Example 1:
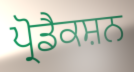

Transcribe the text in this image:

ਪ੍ਰੋਡੈਕਸ਼ਨ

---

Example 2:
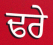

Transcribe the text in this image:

ਢਰੇ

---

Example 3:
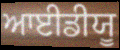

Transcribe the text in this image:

ਆਈਡੀਯੂ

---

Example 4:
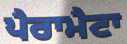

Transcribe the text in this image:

ਪੈਰਾਮੈਟਾ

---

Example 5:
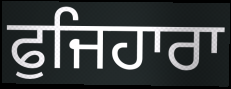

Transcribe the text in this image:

ਫੁਜਿਹਾਰਾ